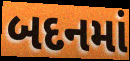
બદનમાં